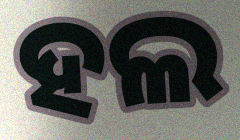
ହଲ